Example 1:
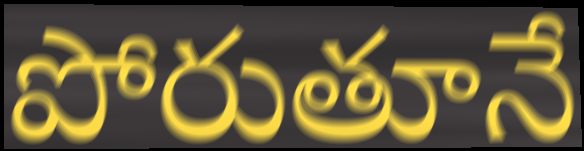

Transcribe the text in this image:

పోరుతూనే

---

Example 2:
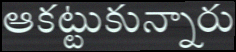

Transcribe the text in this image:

ఆకట్టుకున్నారు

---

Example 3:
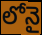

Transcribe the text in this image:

లోనై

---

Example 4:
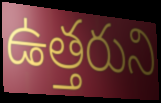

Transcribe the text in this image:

ఉత్తరుని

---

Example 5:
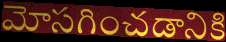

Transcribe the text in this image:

మోసగించడానికి